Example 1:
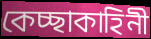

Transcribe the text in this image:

কেচ্ছাকাহিনী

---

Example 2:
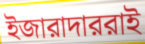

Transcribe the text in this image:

ইজারাদাররাই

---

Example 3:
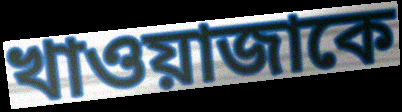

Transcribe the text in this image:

খাওয়াজাকে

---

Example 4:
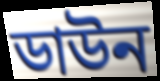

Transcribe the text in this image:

ডাউন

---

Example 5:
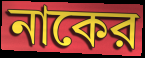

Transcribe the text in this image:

নাকের